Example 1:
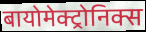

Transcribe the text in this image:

बायोमेक्ट्रोनिक्स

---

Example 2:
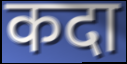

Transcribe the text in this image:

कदा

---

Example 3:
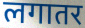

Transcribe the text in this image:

लगातर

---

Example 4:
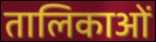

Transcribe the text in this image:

तालिकाओं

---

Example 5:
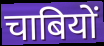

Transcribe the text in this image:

चाबियों